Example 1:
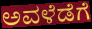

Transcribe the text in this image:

ಅವಳೆಡೆಗೆ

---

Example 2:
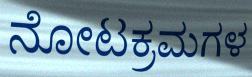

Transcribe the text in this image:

ನೋಟಕ್ರಮಗಳ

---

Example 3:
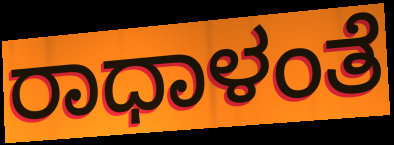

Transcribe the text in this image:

ರಾಧಾಳಂತೆ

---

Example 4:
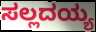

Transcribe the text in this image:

ಸಲ್ಲದಯ್ಯ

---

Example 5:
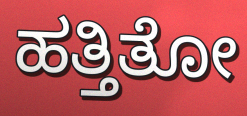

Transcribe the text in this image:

ಹತ್ತಿತೋ